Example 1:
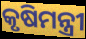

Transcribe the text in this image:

କୃଷିମନ୍ତ୍ରୀ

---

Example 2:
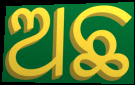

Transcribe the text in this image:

ଅଛ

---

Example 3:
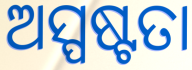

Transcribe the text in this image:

ଅସ୍ପଷ୍ଟତା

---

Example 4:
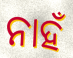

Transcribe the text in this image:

ନାହଁ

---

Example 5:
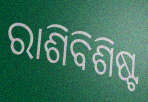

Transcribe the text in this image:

ରାଶିବିଶିଷ୍ଟ